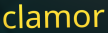
clamor